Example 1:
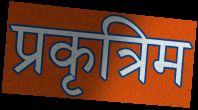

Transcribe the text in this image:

प्रकृत्रिम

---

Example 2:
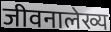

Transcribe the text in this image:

जीवनालेख्य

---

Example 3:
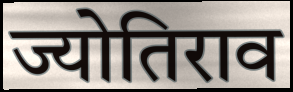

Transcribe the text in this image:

ज्‍योतिराव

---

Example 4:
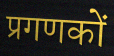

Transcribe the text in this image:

प्रगणकों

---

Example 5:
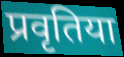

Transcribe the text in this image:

प्रवृतिया